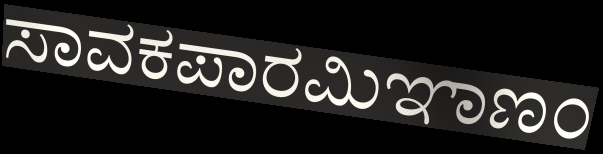
ಸಾವಕಪಾರಮಿಞಾಣಂ